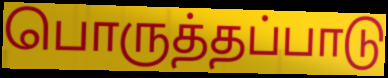
பொருத்தப்பாடு